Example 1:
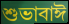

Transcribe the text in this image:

শুভাবাঈ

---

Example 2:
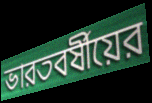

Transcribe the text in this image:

ভারতবর্ষীয়ের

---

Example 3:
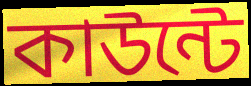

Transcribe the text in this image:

কাউন্টে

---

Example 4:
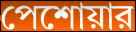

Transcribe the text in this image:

পেশোয়ার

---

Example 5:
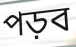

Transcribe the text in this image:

পড়ব